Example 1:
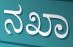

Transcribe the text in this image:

ನಖಾ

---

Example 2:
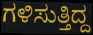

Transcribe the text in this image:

ಗಳಿಸುತ್ತಿದ್ದ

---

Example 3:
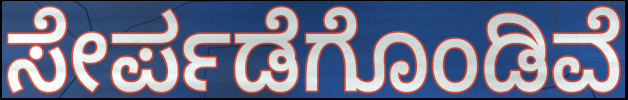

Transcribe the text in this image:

ಸೇರ್ಪಡೆಗೊಂಡಿವೆ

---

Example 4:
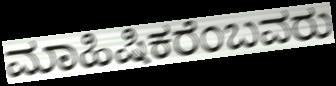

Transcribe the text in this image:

ಮಾಹಿಷಿಕರೆಂಬವರು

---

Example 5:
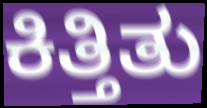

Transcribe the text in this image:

ಕಿತ್ತಿತು